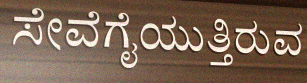
ಸೇವೆಗೈಯುತ್ತಿರುವ